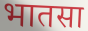
भातसा